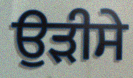
ਉੜੀਸੇ